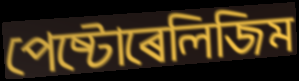
পেষ্টোৰেলিজিম